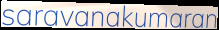
saravanakumaran